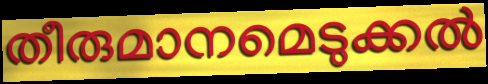
തീരുമാനമെടുക്കൽ